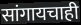
सांगायचाही